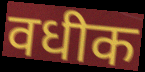
वधीक